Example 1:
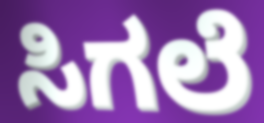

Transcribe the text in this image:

ಸಿಗಲೆ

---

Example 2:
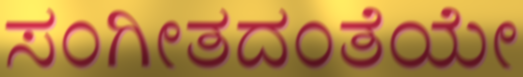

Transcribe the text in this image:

ಸಂಗೀತದಂತೆಯೇ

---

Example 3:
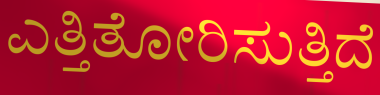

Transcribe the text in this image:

ಎತ್ತಿತೋರಿಸುತ್ತಿದೆ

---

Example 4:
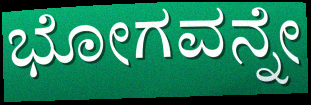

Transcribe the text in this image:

ಭೋಗವನ್ನೇ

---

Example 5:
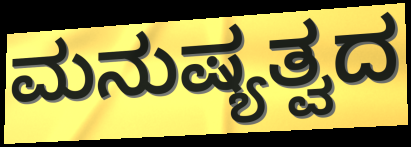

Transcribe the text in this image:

ಮನುಷ್ಯತ್ವದ